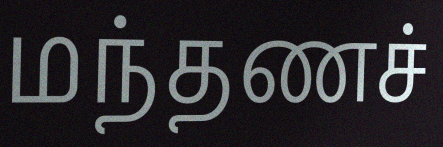
மந்தணச்